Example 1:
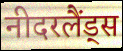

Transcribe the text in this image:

नीदरलैंड्स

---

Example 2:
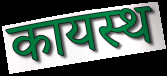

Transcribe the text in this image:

कायस्थ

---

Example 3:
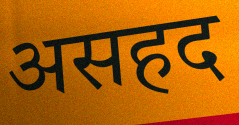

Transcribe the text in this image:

असहद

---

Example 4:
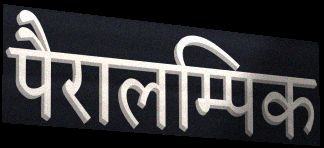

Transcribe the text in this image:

पैरालम्पिक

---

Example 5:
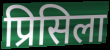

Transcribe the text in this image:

प्रिसिला